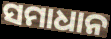
ସମାଧାନ